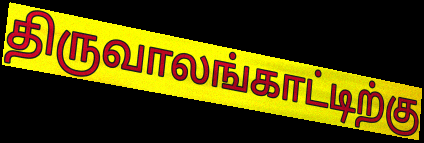
திருவாலங்காட்டிற்கு